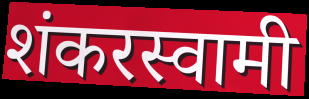
शंकरस्वामी